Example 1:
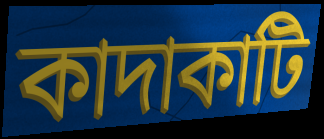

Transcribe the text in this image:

কাদাকাটি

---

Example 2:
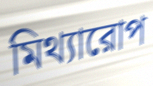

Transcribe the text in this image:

মিথ্যারোপ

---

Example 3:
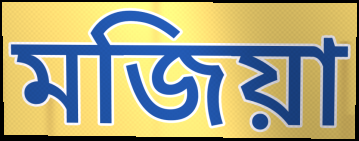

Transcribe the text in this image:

মজিয়া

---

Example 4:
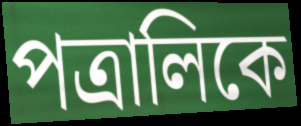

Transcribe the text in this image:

পত্রালিকে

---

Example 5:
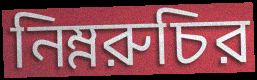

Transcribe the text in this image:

নিম্নরুচির